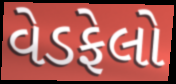
વેડફેલો